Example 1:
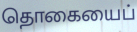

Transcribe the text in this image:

தொகையைப்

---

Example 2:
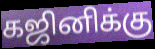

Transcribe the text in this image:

கஜினிக்கு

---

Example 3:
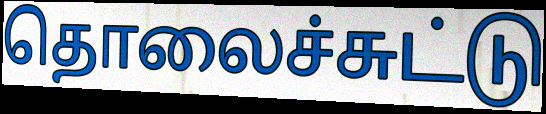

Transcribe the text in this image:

தொலைச்சுட்டு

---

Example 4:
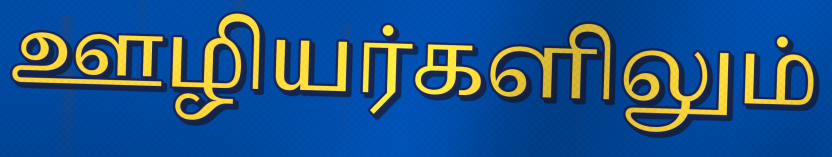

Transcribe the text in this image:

ஊழியர்களிலும்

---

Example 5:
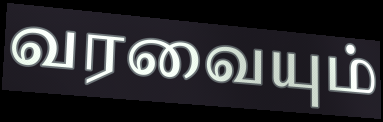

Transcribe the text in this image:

வரவையும்